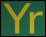
Yr